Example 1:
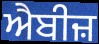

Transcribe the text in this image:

ਐਬੀਜ਼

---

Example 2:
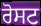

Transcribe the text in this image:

ਰੋਸਟ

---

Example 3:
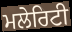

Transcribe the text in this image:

ਮਲੇਰਿਟੀ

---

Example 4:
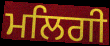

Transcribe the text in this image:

ਮਲਿਗੀ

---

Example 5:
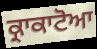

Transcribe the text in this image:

ਕ੍ਰਾਕਾਟੋਆ